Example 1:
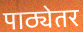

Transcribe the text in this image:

पाठ्येतर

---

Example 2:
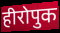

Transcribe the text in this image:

हीरोपुक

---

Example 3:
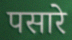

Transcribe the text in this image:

पसारे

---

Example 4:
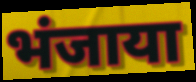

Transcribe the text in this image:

भंजाया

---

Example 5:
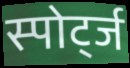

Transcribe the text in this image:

स्पोर्ट्ज